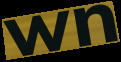
wn